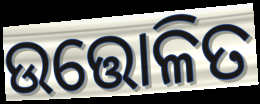
ଉତ୍ତୋଳିତ